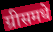
ग्रीसमधे